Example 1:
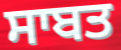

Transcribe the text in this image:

ਸਾਬਤ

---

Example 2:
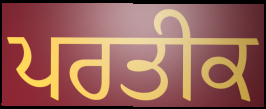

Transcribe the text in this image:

ਪਰਤੀਕ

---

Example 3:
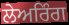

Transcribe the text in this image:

ਲੇਅਰਿੰਗ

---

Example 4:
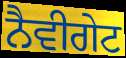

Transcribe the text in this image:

ਨੈਵੀਗੇਟ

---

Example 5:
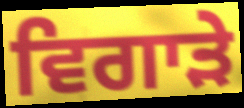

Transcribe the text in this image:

ਵਿਗਾੜੇ